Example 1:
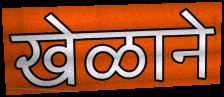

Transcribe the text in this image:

खेळाने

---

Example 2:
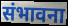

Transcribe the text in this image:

संभावना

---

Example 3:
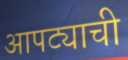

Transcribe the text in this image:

आपट्याची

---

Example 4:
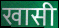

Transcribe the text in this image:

खासी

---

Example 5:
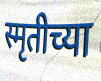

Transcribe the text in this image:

स्मृतीच्या